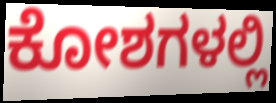
ಕೋಶಗಳಲ್ಲಿ